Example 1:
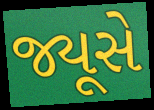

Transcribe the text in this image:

જ્યૂસે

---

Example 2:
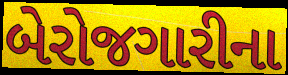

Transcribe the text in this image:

બેરોજગારીના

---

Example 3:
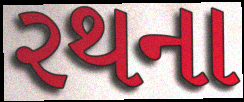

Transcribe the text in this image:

રથના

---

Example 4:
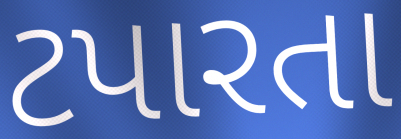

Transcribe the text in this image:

ટપારતા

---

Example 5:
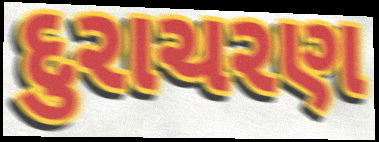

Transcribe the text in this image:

દુરાચરણ